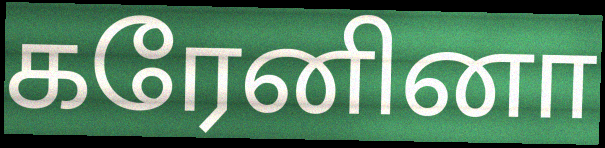
கரேனினா